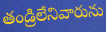
తండ్రిలేనివారును